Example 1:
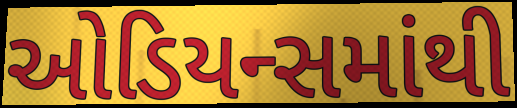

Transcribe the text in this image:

ઓડિયન્સમાંથી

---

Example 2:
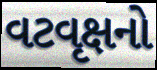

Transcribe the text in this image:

વટવૃક્ષનો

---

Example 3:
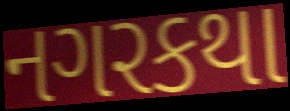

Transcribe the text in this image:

નગરકથા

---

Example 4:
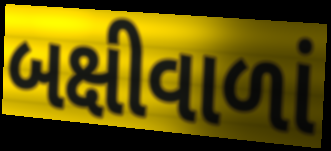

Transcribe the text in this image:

બક્ષીવાળાં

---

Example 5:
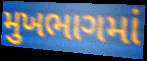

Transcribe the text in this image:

મુખભાગમાં